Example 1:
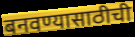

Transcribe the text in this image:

बनवण्यासाठीची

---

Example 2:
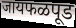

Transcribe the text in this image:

जायफळपूड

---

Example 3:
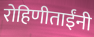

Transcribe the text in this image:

रोहिणीताईंनी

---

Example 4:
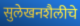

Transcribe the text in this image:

सुलेखनशैलीचे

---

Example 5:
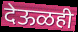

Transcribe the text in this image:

देऊळही